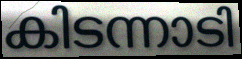
കിടന്നാടി